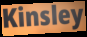
Kinsley